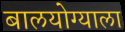
बालयोग्याला